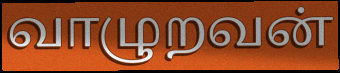
வாழுறவன்